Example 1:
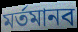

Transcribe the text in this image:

মর্তমানব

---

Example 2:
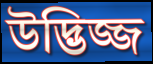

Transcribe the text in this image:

উদ্ভিজ্জ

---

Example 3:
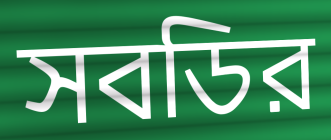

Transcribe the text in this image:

সবডির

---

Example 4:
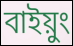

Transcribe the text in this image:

বাইয়ুং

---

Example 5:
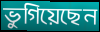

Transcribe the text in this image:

ভুগিয়েছেন